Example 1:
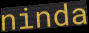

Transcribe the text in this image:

ninda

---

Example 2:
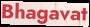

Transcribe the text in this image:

Bhagavat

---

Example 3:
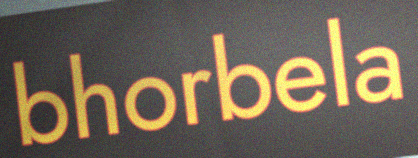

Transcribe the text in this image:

bhorbela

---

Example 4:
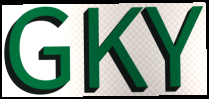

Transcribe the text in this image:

GKY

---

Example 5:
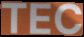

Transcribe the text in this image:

TEC